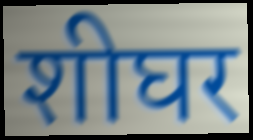
शीघर